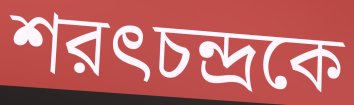
শরৎচন্দ্রকে